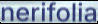
nerifolia